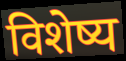
विशेष्य